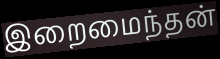
இறைமைந்தன்